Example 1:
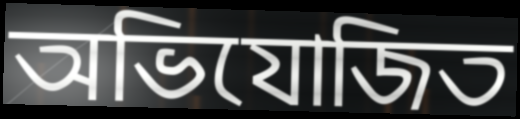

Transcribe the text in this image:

অভিযোজিত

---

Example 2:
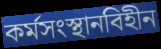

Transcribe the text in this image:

কর্মসংস্থানবিহীন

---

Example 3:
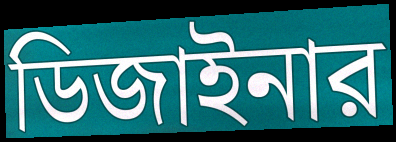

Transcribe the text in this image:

ডিজাইনার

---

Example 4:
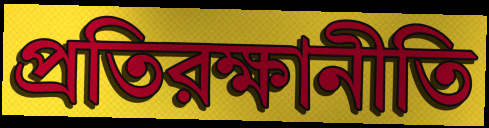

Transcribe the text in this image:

প্রতিরক্ষানীতি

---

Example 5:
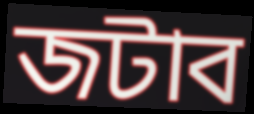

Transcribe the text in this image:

জটাব